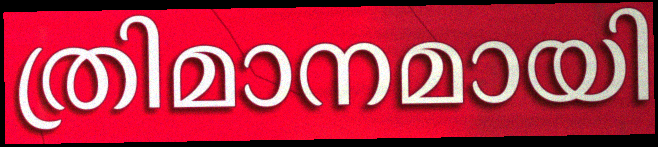
ത്രിമാനമായി